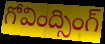
గోవింద్సింగ్